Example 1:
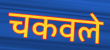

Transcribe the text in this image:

चकवले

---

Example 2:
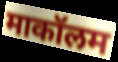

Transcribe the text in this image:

माकॉलम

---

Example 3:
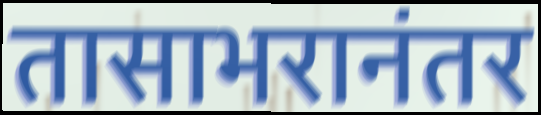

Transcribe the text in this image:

तासाभरानंतर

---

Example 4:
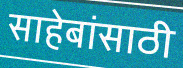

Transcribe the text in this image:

साहेबांसाठी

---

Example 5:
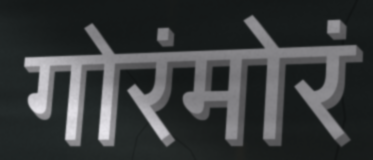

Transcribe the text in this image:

गोरंमोरं